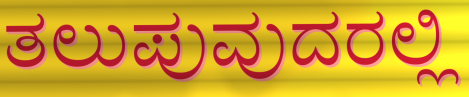
ತಲುಪುವುದರಲ್ಲಿ